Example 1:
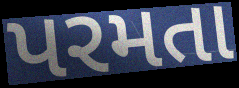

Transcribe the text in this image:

પરમતા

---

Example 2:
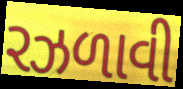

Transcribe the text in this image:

રઝળાવી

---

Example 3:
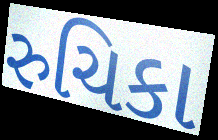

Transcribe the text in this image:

રુચિકા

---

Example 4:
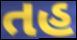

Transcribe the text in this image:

તહ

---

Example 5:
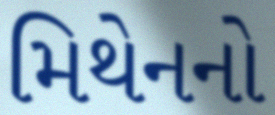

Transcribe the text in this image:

મિથેનનો